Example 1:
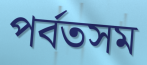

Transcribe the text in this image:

পর্বতসম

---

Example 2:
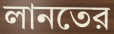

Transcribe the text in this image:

লানতের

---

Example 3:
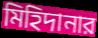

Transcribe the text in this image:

মিহিদানার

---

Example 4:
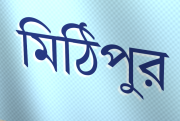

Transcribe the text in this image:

মিঠিপুর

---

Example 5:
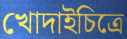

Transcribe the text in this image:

খোদাইচিত্রে